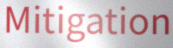
Mitigation